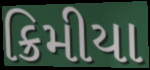
ક્રિમીયા